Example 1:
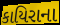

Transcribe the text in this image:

કાયિરાના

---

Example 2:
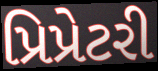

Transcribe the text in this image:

પ્રિપ્રેટરી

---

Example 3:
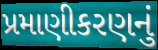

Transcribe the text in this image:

પ્રમાણીકરણનું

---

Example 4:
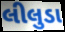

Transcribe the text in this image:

લીલુડા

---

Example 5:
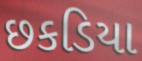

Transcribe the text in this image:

છકડિયા